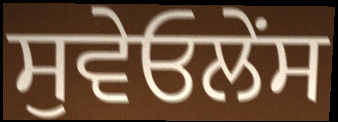
ਸੁਵੇਓਲੇਂਸ